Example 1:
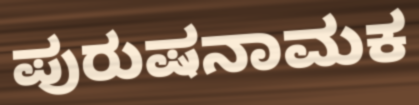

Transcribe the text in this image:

ಪುರುಷನಾಮಕ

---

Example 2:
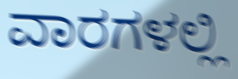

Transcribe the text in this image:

ವಾರಗಳಲ್ಲಿ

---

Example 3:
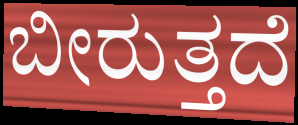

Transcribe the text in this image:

ಬೀರುತ್ತದೆ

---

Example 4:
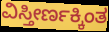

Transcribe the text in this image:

ವಿಸ್ತೀರ್ಣಕ್ಕಿಂತ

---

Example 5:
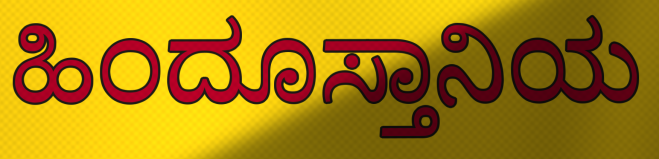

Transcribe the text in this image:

ಹಿಂದೂಸ್ತಾನಿಯ